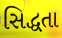
સિદ્ધતા